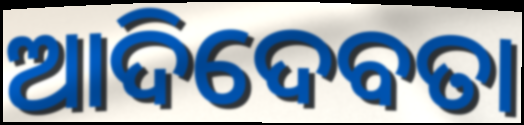
ଆଦିଦେବତା